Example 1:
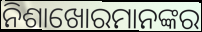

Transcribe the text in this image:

ନିଶାଖୋରମାନଙ୍କର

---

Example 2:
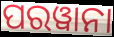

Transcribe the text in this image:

ପରୱାନା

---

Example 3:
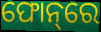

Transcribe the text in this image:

ଫୋନ୍‌ରେ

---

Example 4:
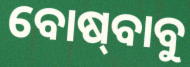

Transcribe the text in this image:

ବୋଷ୍‍ବାବୁ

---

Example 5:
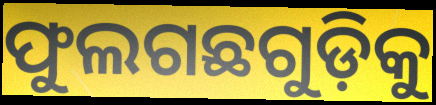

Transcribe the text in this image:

ଫୁଲଗଛଗୁଡ଼ିକୁ